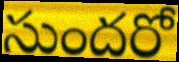
సుందరో